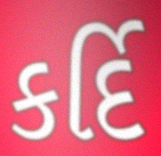
કર્દિ